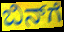
ಬಿನ್‌ಗೆ